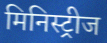
मिनिस्ट्रीज